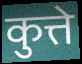
कुत्ते